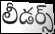
లీడర్స్